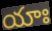
యాః